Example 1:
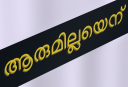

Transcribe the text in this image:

ആരുമില്ലയെന്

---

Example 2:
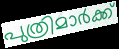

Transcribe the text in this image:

പുത്രിമാർക്ക്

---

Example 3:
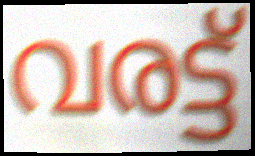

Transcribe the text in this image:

വരട്ട്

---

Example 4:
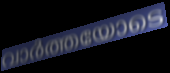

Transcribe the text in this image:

വാർത്തയോടെ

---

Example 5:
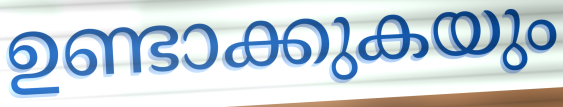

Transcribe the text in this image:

ഉണ്ടാക്കുകയും